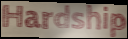
Hardship